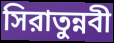
সিরাতুন্নবী